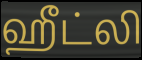
ஹீட்லி